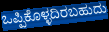
ಒಪ್ಪಿಕೊಳ್ಳದಿರಬಹುದು